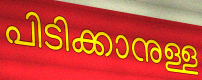
പിടിക്കാനുള്ള